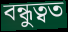
বন্ধুত্বত